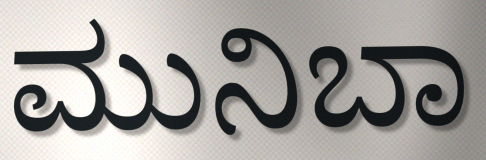
ಮುನಿಬಾ